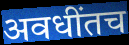
अवधींतच